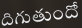
దిగుతుందో